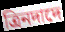
ত্রিনদাদে